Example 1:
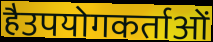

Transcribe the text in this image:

हैउपयोगकर्ताओं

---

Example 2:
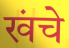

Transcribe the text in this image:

खंचे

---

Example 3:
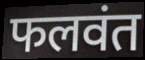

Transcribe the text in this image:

फलवंत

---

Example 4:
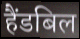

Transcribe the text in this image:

हैंडबिल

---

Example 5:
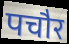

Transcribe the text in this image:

पचौर